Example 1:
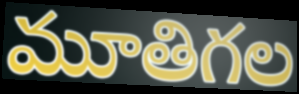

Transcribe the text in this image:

మూతిగల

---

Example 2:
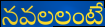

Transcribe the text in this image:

నవలలంటే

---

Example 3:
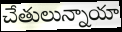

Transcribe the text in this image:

చేతులున్నాయా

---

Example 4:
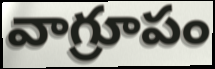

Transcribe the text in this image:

వాగ్రూపం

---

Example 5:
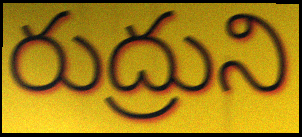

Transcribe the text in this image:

రుద్రుని